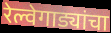
रेल्वेगाड्यांचा